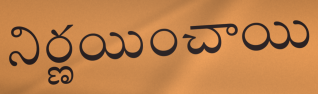
నిర్ణయించాయి